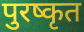
पुरष्कृत